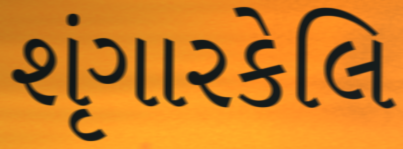
શૃંગારકેલિ